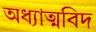
অধ্যাত্মবিদ